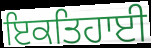
ਇਕਤਿਹਾਈ